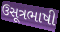
ઉસૂત્રભાષી